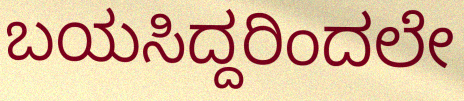
ಬಯಸಿದ್ದರಿಂದಲೇ